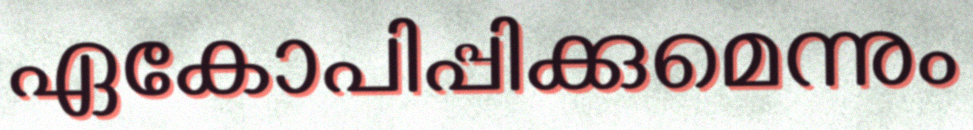
ഏകോപിപ്പിക്കുമെന്നും